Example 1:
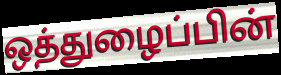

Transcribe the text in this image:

ஒத்துழைப்பின்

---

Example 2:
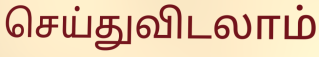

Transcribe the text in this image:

செய்துவிடலாம்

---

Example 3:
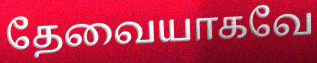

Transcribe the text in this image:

தேவையாகவே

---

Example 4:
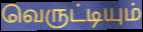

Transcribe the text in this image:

வெருட்டியும்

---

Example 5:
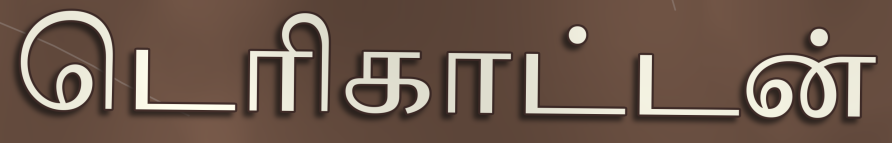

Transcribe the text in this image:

டெரிகாட்டன்